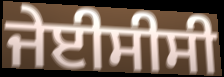
ਜੇਈਸੀਸੀ